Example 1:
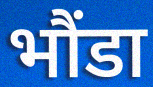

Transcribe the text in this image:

भौंडा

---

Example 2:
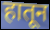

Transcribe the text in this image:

हातून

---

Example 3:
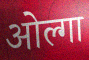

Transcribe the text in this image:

ओल्गा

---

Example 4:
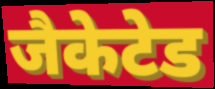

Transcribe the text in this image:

जैकेटेड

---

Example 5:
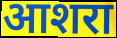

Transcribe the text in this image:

आशरा